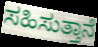
ಸಹಿಸುತ್ತಾನೆ